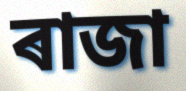
ৰাজা